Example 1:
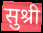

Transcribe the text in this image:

सुश्री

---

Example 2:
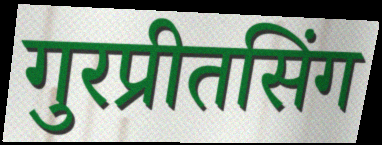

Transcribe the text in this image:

गुरप्रीतसिंग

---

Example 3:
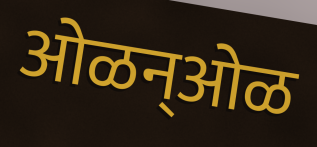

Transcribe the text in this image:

ओळन्ओळ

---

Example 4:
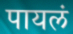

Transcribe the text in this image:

पायलं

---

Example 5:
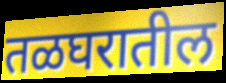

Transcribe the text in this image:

तळघरातील